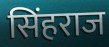
सिंहराज